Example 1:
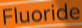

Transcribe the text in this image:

Fluoride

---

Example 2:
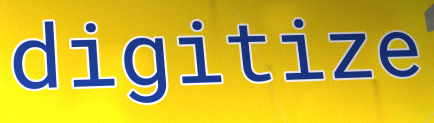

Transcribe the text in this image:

digitize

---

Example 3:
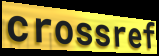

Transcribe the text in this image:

crossref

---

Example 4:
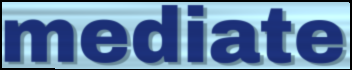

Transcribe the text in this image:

mediate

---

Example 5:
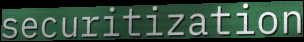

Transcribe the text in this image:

securitization